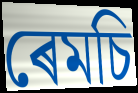
ৰেমচি